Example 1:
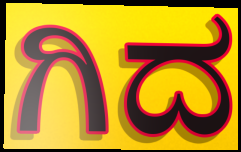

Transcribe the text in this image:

ಗಿದ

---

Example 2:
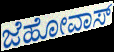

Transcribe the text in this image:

ಜೆಹೋವಾಸ್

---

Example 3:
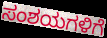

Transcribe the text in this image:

ಸಂಶಯಗಳಿಗೆ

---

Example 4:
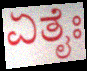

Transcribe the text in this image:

ಏತೈಃ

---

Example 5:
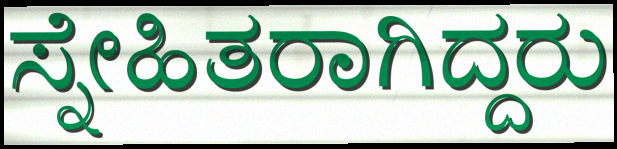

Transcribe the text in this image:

ಸ್ನೇಹಿತರಾಗಿದ್ದರು